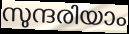
സുന്ദരിയാം